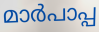
മാർപാപ്പ